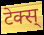
टेक्स्